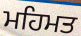
ਮਹਿਮਤ